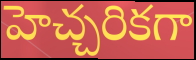
హెచ్చరికగా